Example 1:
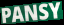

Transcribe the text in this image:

PANSY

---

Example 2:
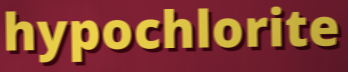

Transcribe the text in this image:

hypochlorite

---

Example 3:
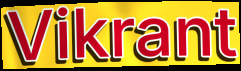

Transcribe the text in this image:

Vikrant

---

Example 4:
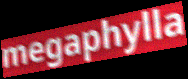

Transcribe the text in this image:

megaphylla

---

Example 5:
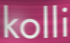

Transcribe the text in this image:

kolli